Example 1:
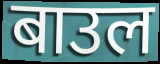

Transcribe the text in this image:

बाउल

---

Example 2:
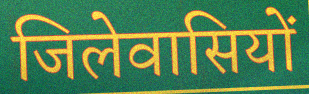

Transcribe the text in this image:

जिलेवासियों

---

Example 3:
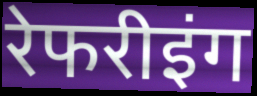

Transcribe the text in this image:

रेफरीइंग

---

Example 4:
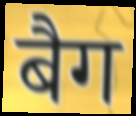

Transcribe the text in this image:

बैग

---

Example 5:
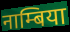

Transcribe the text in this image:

नाम्बिया